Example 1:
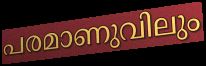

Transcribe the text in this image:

പരമാണുവിലും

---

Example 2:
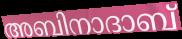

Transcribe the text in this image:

അബിനാദാബ്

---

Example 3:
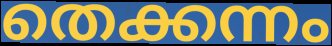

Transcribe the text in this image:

തെക്കന്നം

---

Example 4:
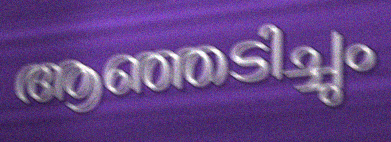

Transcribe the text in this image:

ആഞ്ഞടിച്ചും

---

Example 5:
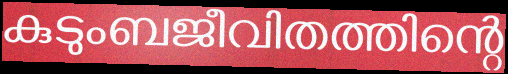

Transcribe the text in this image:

കുടുംബജീവിതത്തിന്റെ